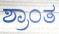
ಶ್ರಾಂತ